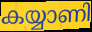
കയ്യാണി